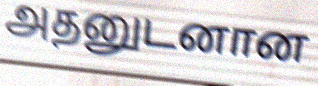
அதனுடனான